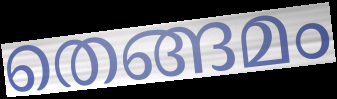
തെങ്ങമം